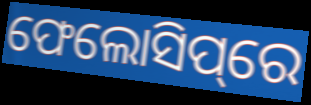
ଫେଲୋସିପ୍‌ରେ